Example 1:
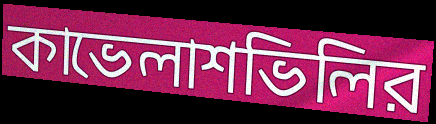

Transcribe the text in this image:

কাভেলাশভিলির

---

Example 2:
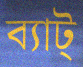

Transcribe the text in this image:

ব্যাট্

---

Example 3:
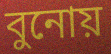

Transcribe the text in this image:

বুনোয়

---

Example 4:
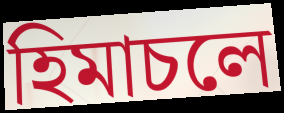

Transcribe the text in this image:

হিমাচলে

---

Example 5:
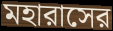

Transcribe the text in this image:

মহারাসের